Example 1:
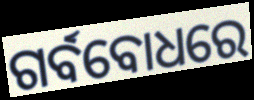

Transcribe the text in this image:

ଗର୍ବବୋଧରେ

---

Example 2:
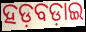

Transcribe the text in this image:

ହଡ଼ବଡ଼ାଇ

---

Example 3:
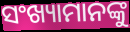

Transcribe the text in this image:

ସଂଖ୍ୟାମାନଙ୍କୁ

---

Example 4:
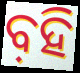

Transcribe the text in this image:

ବ଼ହି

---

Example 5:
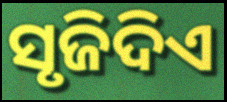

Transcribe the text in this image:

ସୃଜିଦିଏ